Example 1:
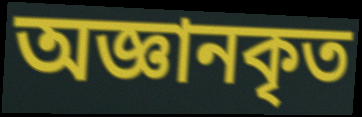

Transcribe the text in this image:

অজ্ঞানকৃত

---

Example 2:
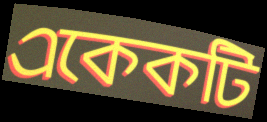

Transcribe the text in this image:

একেকটি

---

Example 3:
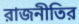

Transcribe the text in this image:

রাজনীতির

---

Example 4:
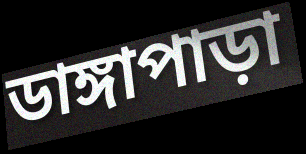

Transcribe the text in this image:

ডাঙ্গাপাড়া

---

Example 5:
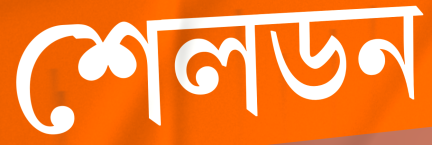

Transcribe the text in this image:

শেলডন